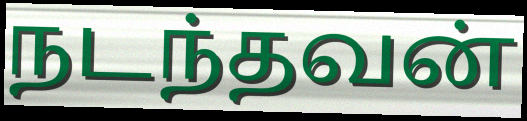
நடந்தவன்